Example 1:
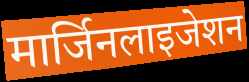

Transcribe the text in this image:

मार्जिनलाइजेशन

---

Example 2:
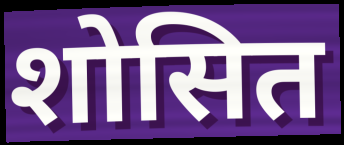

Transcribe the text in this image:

शोसित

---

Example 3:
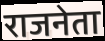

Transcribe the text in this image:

राजनेता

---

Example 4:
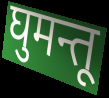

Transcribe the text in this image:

घुमन्तू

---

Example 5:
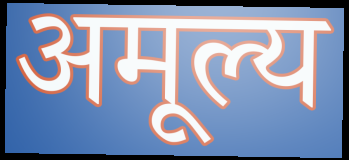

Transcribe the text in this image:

अमूल्य